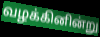
வழக்கினின்று